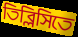
তিব্লিসিতে